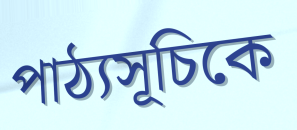
পাঠ্যসূচিকে